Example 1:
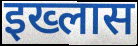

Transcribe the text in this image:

इख्लास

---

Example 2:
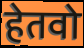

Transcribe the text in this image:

हेतवो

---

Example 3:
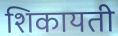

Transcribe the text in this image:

शिकायती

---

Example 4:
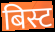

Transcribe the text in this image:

बिस्ट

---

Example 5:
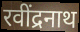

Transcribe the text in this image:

रवींद्रनाथ